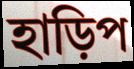
হাড়িপ